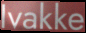
Ivakke